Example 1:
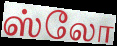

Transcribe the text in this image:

ஸ்லோ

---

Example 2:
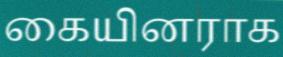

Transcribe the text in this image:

கையினராக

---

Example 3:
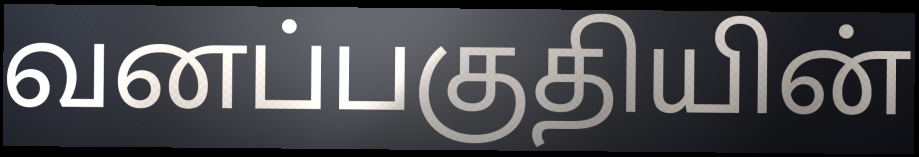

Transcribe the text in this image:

வனப்பகுதியின்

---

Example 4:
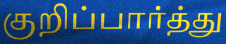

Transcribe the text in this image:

குறிப்பார்த்து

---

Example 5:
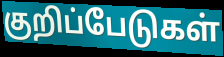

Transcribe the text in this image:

குறிப்பேடுகள்